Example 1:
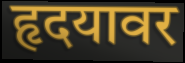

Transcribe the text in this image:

हृदयावर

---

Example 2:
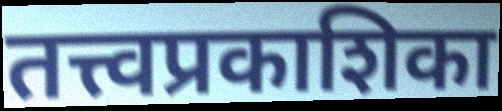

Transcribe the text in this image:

तत्त्वप्रकाशिका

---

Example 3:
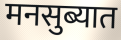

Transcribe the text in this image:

मनसुब्यात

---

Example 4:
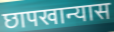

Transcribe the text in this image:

छापखान्यास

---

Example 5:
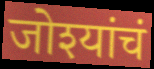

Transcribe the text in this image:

जोश्यांचं